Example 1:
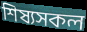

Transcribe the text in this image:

শিষ্যসকল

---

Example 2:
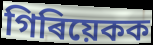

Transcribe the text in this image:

গিৰিয়েকক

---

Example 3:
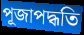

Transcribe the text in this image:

পূজাপদ্ধতি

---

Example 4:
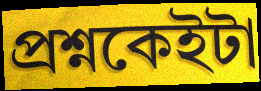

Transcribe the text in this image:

প্ৰশ্নকেইটা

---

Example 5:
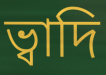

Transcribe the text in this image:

ভ্বাদি